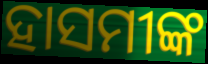
ହାସମୀଙ୍କ